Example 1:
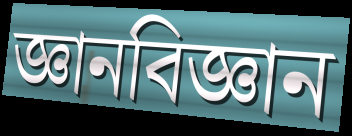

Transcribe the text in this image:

জ্ঞানবিজ্ঞান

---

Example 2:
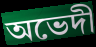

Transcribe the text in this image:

অভেদী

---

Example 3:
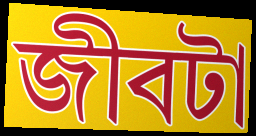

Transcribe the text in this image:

জীবটা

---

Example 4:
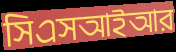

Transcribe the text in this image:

সিএসআইআর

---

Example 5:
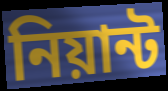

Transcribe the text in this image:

নিয়ান্ট